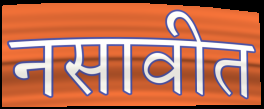
नसावीत